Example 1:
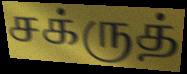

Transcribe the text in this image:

சக்ருத்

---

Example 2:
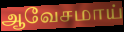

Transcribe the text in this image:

ஆவேசமாய்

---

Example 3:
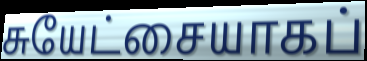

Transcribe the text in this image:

சுயேட்சையாகப்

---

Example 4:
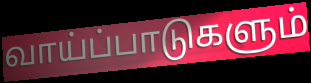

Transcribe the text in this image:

வாய்ப்பாடுகளும்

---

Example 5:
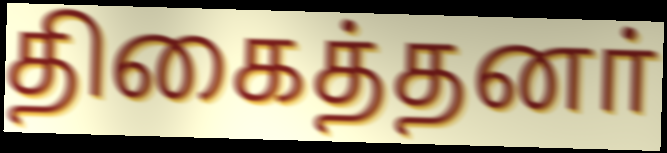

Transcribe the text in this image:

திகைத்தனர்